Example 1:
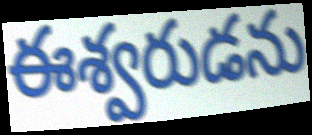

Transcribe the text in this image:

ఈశ్వరుడను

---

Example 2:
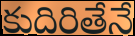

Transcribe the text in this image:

కుదిరితేనే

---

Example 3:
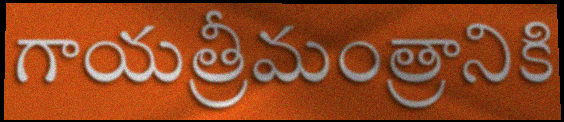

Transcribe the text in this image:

గాయత్రీమంత్రానికి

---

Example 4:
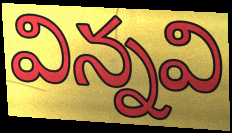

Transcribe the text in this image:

విన్నవి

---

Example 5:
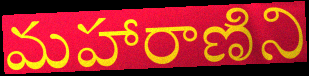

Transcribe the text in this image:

మహారాణిని